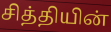
சித்தியின்